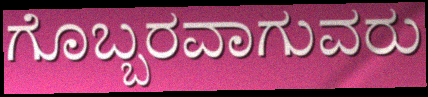
ಗೊಬ್ಬರವಾಗುವರು